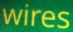
wires